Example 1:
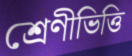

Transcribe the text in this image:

শ্রেণীভিত্তি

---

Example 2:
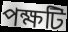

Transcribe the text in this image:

পক্ষটি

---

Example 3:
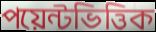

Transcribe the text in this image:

পয়েন্টভিত্তিক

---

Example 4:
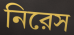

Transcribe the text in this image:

নিরেস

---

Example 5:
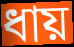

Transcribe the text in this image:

ধায়